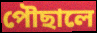
পৌছালে